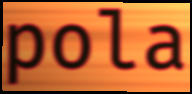
pola